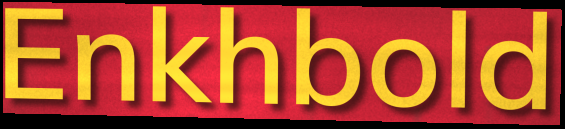
Enkhbold